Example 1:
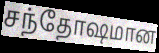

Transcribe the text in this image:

சந்தோஷமான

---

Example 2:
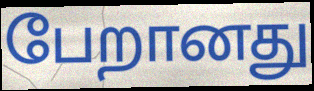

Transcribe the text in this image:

பேறானது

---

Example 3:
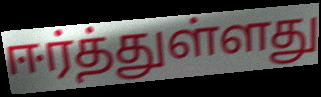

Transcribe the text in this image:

ஈர்த்துள்ளது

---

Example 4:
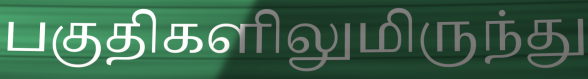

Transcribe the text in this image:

பகுதிகளிலுமிருந்து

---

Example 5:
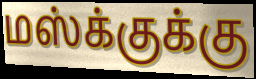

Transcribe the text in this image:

மஸ்க்குக்கு